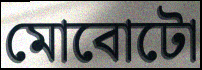
মোবোটো